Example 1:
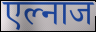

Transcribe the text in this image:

एल्नाज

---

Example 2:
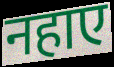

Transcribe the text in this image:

नहाए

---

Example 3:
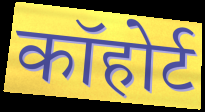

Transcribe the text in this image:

कॉहोर्ट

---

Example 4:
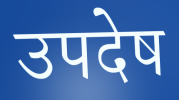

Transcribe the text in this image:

उपदेष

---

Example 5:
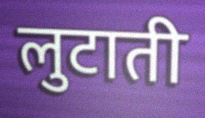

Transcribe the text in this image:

लुटाती